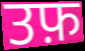
उफ़